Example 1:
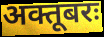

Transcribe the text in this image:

अक्तूबरः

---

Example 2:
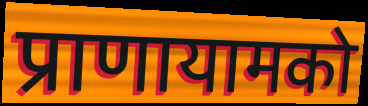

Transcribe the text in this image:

प्राणायामको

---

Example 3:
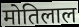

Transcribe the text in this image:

मोतिलाल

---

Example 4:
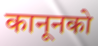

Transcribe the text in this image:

कानूनको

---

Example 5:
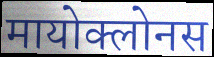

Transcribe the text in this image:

मायोक्लोनस